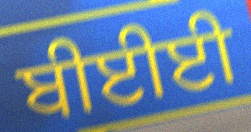
ਬੀਈਈ